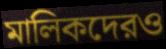
মালিকদেরও